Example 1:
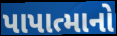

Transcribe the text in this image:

પાપાત્માનો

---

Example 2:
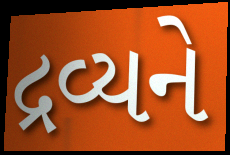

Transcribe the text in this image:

દ્રવ્યને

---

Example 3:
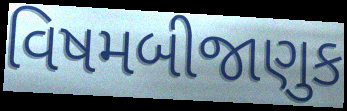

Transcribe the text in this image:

વિષમબીજાણુક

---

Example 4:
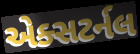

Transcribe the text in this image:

એક્સટર્નલ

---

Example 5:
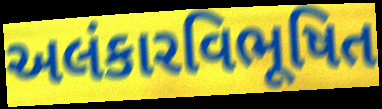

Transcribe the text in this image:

અલંકારવિભૂષિત